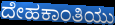
ದೇಹಕಾಂತಿಯು